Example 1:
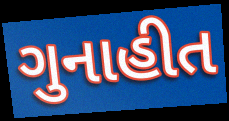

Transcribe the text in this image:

ગુનાહીત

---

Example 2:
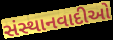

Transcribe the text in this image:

સંસ્થાનવાદીઓ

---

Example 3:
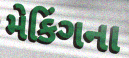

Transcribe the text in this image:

મેકિંગના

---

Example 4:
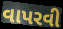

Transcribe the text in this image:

વાપરવી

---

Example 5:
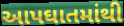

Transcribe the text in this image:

આપઘાતમાંથી